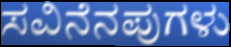
ಸವಿನೆನಪುಗಳು